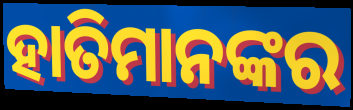
ହାତିମାନଙ୍କର